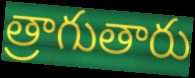
త్రాగుతారు